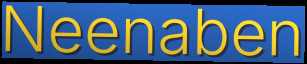
Neenaben